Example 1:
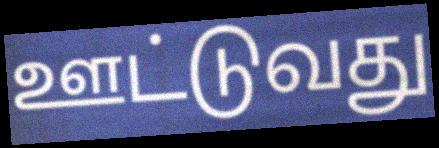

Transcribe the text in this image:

ஊட்டுவது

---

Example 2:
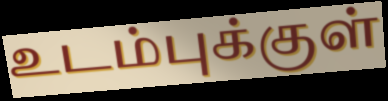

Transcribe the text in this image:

உடம்புக்குள்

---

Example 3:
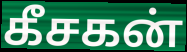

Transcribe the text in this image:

கீசகன்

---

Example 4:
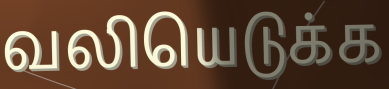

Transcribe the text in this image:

வலியெடுக்க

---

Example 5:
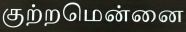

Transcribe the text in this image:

குற்றமென்னை